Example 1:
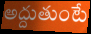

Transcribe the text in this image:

అద్దుతుంటే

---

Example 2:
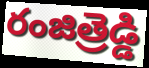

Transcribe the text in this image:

రంజిత్రెడ్డి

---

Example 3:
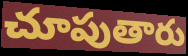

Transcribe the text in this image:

చూపుతారు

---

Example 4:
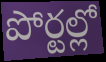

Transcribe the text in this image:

పోర్టల్లో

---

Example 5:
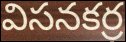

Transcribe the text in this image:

విసనకర్ర